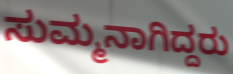
ಸುಮ್ಮನಾಗಿದ್ದರು